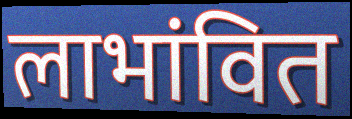
लाभांवित